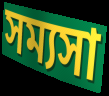
সম্যসা